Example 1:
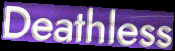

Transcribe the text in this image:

Deathless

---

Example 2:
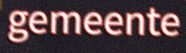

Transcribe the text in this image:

gemeente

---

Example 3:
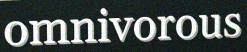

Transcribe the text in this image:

omnivorous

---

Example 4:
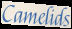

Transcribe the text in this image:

Camelids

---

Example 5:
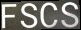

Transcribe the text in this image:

FSCS